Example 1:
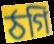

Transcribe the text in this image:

ঠগি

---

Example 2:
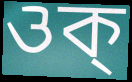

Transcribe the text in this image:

ওক্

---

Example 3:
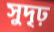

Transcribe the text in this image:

সুদৃঢ়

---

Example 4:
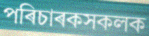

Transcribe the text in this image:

পৰিচাৰকসকলক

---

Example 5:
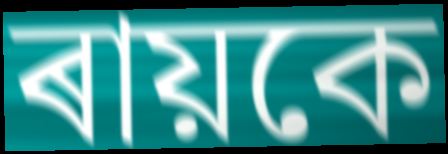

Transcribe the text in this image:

ৰায়কে